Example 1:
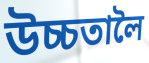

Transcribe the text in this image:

উচ্চতালৈ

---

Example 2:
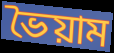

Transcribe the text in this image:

ভৈয়াম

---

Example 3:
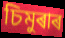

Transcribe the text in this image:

চিমুৰাৰ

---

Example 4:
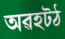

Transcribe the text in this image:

অৱহটঠ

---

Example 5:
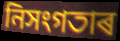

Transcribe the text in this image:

নিসংগতাৰ